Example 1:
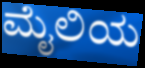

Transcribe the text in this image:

ಮೈಲಿಯ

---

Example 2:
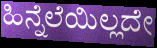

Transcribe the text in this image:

ಹಿನ್ನೆಲೆಯಿಲ್ಲದೇ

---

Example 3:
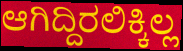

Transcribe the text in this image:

ಆಗಿದ್ದಿರಲಿಕ್ಕಿಲ್ಲ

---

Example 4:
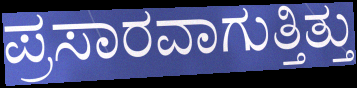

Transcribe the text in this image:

ಪ್ರಸಾರವಾಗುತ್ತಿತ್ತು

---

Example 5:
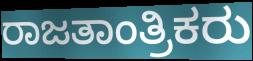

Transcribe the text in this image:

ರಾಜತಾಂತ್ರಿಕರು